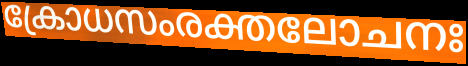
ക്രോധസംരക്തലോചനഃ